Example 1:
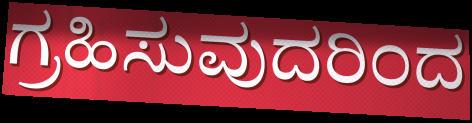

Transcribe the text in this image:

ಗ್ರಹಿಸುವುದರಿಂದ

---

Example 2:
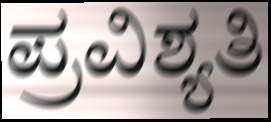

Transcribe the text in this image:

ಪ್ರವಿಶ್ಯತಿ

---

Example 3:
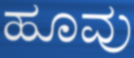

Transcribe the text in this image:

ಹೂವು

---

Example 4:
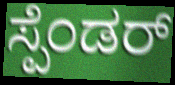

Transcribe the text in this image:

ಸ್ಪೆಂಡರ್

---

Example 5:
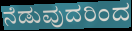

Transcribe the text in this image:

ನೆಡುವುದರಿಂದ